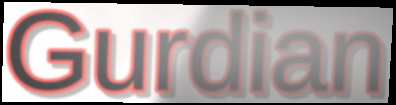
Gurdian